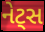
નેટ્સ